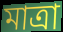
মাত্রা